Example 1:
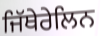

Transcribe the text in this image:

ਜਿੱਥੇਰੇਲਿਨ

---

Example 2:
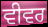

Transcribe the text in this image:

ਵੀਵਰ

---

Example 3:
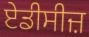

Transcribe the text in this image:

ਏਡੀਸੀਜ਼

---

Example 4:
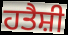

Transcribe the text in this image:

ਹਤੈਸ਼ੀ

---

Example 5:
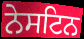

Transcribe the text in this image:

ਨੇਸਟਿਨ